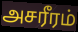
அசரீரம்